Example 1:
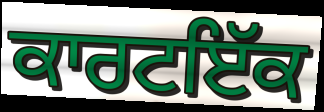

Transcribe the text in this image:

ਕਾਰਟਇੱਕ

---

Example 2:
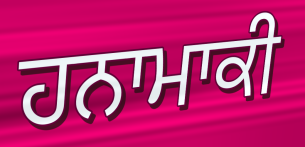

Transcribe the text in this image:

ਹਨਾਮਾਕੀ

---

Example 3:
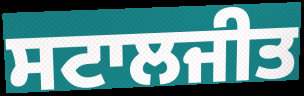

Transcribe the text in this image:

ਸਟਾਲਜੀਤ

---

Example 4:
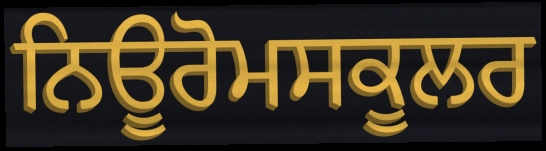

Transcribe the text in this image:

ਨਿਊਰੋਮਸਕੂਲਰ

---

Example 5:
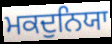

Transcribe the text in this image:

ਮਕਦੁਨਿਯਾ